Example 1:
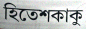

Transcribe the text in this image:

হিতেশকাকু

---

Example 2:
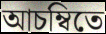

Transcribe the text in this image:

আচম্বিতে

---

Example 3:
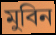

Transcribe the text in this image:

মুবিন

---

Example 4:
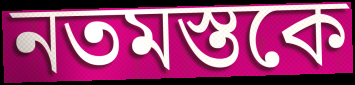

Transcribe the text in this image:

নতমস্তকে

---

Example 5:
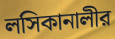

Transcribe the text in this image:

লসিকানালীর